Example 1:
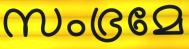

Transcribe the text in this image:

സംഭ്രമേ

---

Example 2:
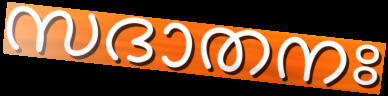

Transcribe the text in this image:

സദാതനഃ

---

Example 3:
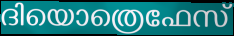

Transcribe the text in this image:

ദിയൊത്രെഫേസ്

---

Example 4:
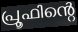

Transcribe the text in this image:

പ്രൂഫിന്റെ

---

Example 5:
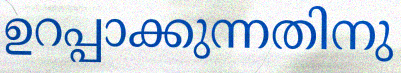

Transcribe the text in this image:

ഉറപ്പാക്കുന്നതിനു